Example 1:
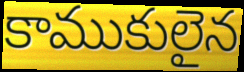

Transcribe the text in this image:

కాముకులైన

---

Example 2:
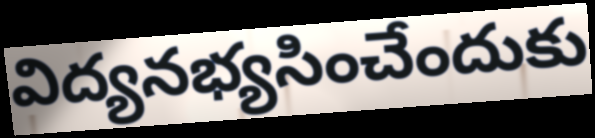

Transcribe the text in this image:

విద్యనభ్యసించేందుకు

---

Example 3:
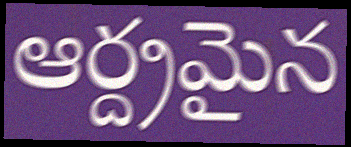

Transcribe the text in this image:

ఆర్ద్రమైన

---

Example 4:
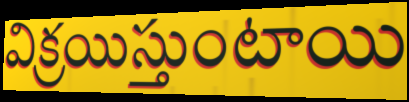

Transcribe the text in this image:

విక్రయిస్తుంటాయి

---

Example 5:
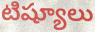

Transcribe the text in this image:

టిష్యూలు